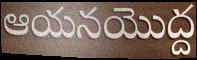
ఆయనయొద్ద